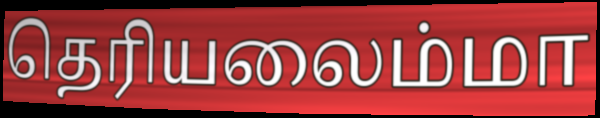
தெரியலைம்மா